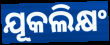
ଯୂକଲିକ୍ଷଂ